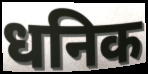
धनिक